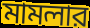
মামলার